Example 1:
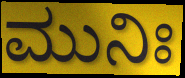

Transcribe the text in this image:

ಮುನಿಃ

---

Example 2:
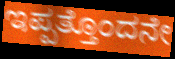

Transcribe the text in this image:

ಇಪ್ಪತ್ತೊಂದನೇ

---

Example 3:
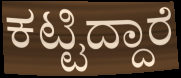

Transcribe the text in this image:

ಕಟ್ಟಿದ್ದಾರೆ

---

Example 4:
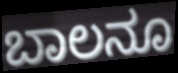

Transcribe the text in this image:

ಬಾಲನೂ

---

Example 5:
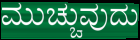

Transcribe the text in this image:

ಮುಚ್ಚುವುದು